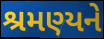
શ્રમણ્યને